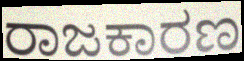
ರಾಜಕಾರಣ